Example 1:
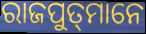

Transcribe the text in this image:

ରାଜପୁତ୍‍ମାନେ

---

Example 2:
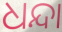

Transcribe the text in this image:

ଧନ୍ଦା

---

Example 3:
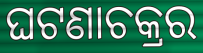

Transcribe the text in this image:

ଘଟଣାଚକ୍ରର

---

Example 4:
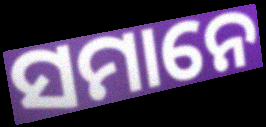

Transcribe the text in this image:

ସମାନେ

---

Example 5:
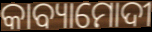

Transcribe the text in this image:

କାବ୍ୟାମୋଦୀ